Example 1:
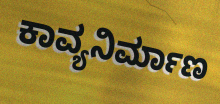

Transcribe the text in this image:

ಕಾವ್ಯನಿರ್ಮಾಣ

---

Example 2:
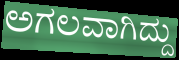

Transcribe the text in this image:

ಅಗಲವಾಗಿದ್ದು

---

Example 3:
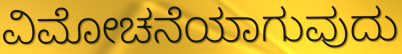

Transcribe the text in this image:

ವಿಮೋಚನೆಯಾಗುವುದು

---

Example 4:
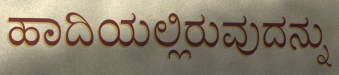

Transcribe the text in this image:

ಹಾದಿಯಲ್ಲಿರುವುದನ್ನು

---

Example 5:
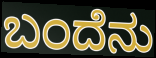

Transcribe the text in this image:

ಬಂದೆನು